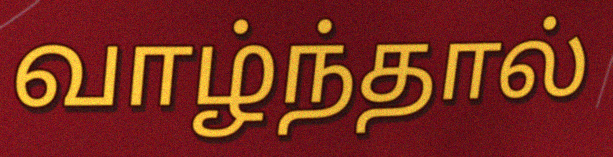
வாழ்ந்தால்